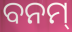
ବନମ୍